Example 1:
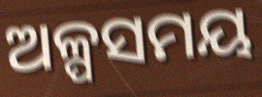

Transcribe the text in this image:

ଅଳ୍ପସମୟ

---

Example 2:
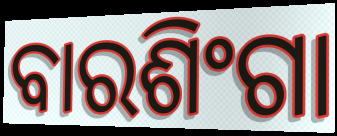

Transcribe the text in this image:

ବାରଶିଂଗା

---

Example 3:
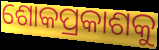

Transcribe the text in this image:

ଶୋକପ୍ରକାଶକୁ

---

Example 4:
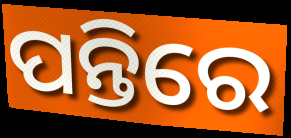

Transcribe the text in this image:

ପନ୍ତିରେ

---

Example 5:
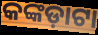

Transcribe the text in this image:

କଙ୍କଡ଼ାଟା